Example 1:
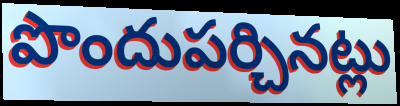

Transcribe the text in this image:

పొందుపర్చినట్లు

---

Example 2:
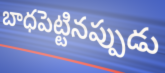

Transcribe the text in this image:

బాధపెట్టినప్పుడు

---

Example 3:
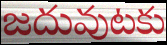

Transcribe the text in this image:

జదువుటకు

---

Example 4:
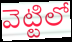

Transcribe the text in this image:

వెట్టిలో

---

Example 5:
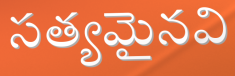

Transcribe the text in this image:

సత్యమైనవి